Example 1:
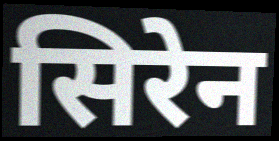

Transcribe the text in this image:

सिरेन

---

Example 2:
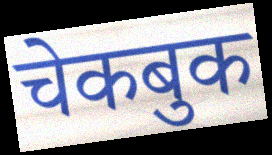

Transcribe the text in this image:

चेकबुक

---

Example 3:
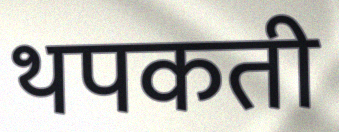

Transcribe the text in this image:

थपकती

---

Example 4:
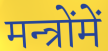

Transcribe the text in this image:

मन्त्रोंमें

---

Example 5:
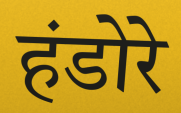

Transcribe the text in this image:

हंडोरे